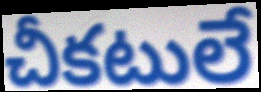
చీకటులే